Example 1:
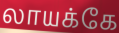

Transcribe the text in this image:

லாயக்கே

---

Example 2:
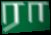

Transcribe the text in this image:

ரா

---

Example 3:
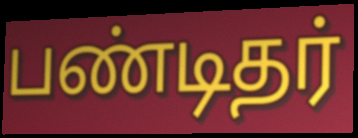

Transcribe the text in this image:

பண்டிதர்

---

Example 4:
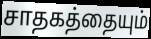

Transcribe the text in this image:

சாதகத்தையும்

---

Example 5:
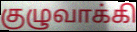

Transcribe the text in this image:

குழுவாக்கி